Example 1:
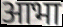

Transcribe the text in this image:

आभा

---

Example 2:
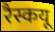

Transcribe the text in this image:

रैस्कयू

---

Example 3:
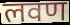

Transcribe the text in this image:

लवण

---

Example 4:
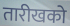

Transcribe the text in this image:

तारीखको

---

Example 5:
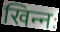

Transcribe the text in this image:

खिन्नः